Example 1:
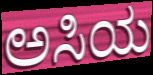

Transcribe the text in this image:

ಅಸಿಯ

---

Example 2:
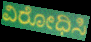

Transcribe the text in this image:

ವಿರೋಧಿಸಿ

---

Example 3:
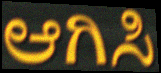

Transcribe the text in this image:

ಆಗಿಸಿ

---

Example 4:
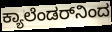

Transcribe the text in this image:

ಕ್ಯಾಲೆಂಡರ್‌ನಿಂದ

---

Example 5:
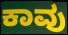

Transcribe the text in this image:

ಕಾವು